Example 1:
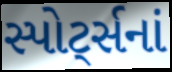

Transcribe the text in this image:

સ્પોર્ટ્સનાં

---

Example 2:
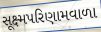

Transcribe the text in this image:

સૂક્ષ્મપરિણામવાળા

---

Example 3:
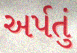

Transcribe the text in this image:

અર્પતું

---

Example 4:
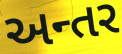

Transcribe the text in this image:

અન્તર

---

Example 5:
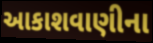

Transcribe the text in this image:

આકાશવાણીના